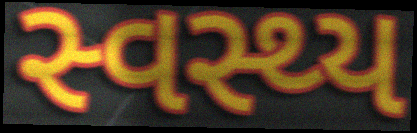
સ્વસ્થ્ય